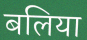
बलिया